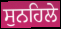
ਸੁਨਹਿਲੇ